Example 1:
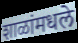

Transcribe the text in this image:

शाळांमधले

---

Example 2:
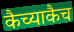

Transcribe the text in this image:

कैच्याकैच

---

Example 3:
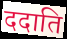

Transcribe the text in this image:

ददाति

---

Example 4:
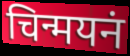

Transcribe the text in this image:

चिन्मयनं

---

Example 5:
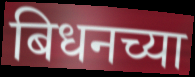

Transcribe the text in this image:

बिधनच्या